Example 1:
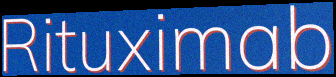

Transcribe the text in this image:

Rituximab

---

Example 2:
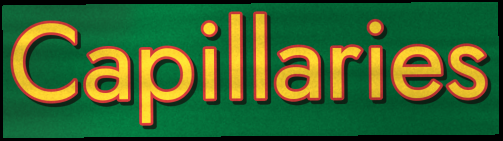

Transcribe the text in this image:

Capillaries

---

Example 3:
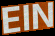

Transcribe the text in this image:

EIN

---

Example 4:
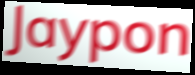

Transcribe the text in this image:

Jaypon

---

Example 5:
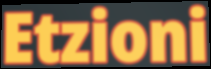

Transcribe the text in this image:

Etzioni